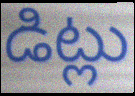
డిట్లు